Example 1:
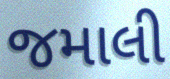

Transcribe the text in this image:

જમાલી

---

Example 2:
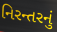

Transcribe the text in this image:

નિરન્તરનું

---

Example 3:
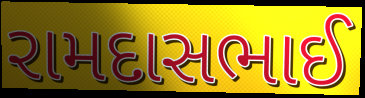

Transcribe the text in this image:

રામદાસભાઈ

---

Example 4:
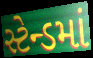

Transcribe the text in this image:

સ્ટેન્ડમાં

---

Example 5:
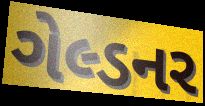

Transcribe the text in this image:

ગેલ્ડનર